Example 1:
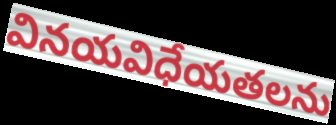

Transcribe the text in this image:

వినయవిధేయతలను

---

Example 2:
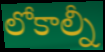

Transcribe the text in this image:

లోకాల్నీ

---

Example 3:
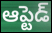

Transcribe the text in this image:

ఆప్టెడ్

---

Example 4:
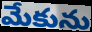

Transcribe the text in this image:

మేకును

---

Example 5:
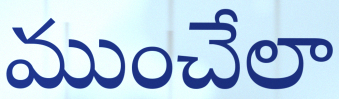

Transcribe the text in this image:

ముంచేలా